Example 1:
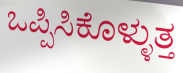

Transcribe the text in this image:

ಒಪ್ಪಿಸಿಕೊಳ್ಳುತ್ತ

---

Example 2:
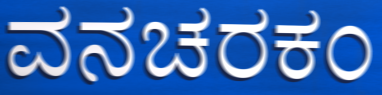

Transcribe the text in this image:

ವನಚರಕಂ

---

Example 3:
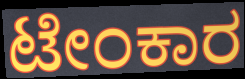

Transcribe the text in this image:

ಟೇಂಕಾರ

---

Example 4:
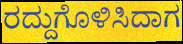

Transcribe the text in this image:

ರದ್ದುಗೊಳಿಸಿದಾಗ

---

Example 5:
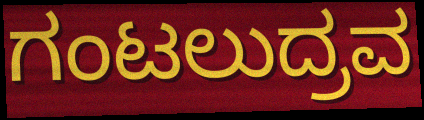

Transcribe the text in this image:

ಗಂಟಲುದ್ರವ